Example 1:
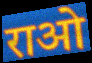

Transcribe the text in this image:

राओ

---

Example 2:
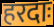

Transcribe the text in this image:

हरदाः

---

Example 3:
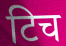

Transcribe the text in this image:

टिच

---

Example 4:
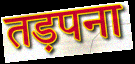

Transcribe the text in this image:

तड़पना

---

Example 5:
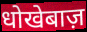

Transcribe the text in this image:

धोखेबाज़